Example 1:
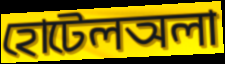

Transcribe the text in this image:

হোটেলঅলা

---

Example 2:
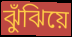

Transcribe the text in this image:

ঝুঁঝিয়ে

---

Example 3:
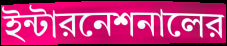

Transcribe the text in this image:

ইন্টারনেশনালের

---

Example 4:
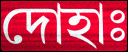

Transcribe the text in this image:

দোহাঃ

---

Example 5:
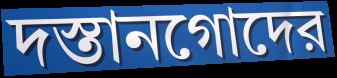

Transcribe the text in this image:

দস্তানগোদের